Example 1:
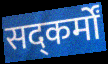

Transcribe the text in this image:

सद्कर्मों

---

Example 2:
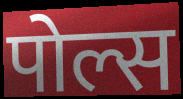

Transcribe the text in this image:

पोल्‍स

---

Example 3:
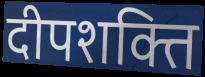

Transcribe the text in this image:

दीपशक्ति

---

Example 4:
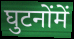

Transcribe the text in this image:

घुटनोंमें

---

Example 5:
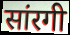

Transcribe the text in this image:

सांरगी